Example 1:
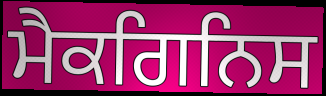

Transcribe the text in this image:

ਮੈਕਗਿਨਿਸ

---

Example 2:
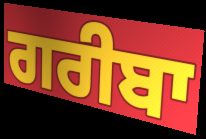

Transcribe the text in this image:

ਗਰੀਬਾ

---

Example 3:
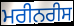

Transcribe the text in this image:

ਮਰੀਨਰੀਸ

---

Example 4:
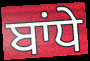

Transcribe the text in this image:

ਬਾਂਧੇ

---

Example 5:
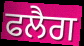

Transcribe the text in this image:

ਫਲੈਗ